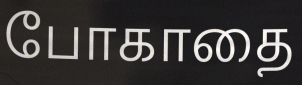
போகாதை